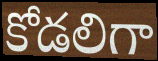
కోడలిగా